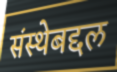
संस्थेबद्दल